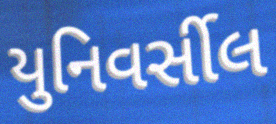
યુનિવર્સીલ